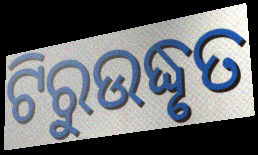
ଟିରୁଉଦ୍ଧୃତ